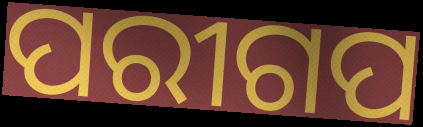
ପରୀଗପ